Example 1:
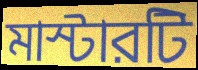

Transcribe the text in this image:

মাস্টারটি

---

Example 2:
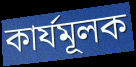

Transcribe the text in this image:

কার্যমূলক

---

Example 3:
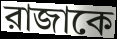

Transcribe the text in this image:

রাজাকে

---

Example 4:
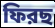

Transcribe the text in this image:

ফিরছ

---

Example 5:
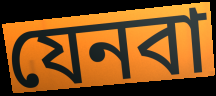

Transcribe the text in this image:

যেনবা